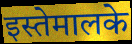
इस्तेमालके